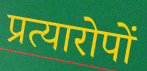
प्रत्यारोपों